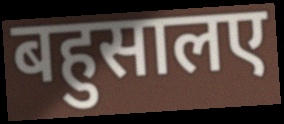
बहुसालए